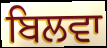
ਬਿਲਵਾ